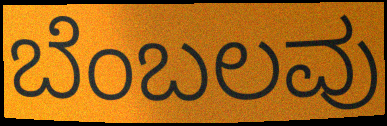
ಬೆಂಬಲವು